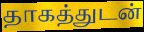
தாகத்துடன்